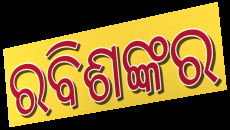
ରବିଶଙ୍କର